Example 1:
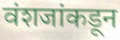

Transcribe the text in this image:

वंशजांकडून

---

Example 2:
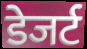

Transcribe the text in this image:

डेजर्ट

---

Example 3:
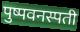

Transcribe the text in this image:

पुष्पवनस्पती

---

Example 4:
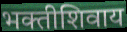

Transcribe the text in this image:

भक्तीशिवाय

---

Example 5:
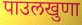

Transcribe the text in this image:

पाउलखुणा